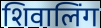
शिवालिंग